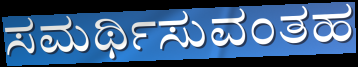
ಸಮರ್ಥಿಸುವಂತಹ